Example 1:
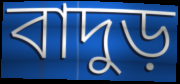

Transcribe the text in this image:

বাদুড়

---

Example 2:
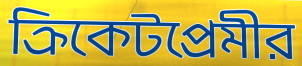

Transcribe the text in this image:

ক্রিকেটপ্রেমীর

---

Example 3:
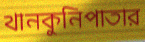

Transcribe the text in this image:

থানকুনিপাতার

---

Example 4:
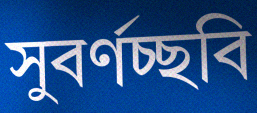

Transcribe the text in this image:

সুবর্ণচ্ছবি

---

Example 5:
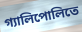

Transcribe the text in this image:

গ্যালিপোলিতে